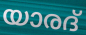
യാരദ്